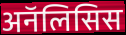
अनॅलिसिस